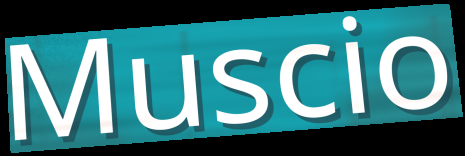
Muscio